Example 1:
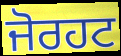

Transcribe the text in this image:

ਜੋਰਹਟ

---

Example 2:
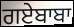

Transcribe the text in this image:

ਗਏਬਾਬਾ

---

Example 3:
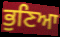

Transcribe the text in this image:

ਭੁਣਿਆ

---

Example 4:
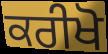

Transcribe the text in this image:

ਕਰੀਖੋ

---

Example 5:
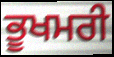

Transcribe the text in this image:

ਭੂਖਮਰੀ